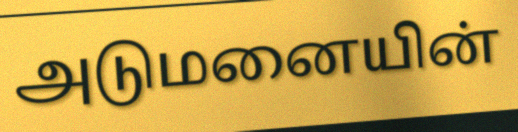
அடுமனையின்